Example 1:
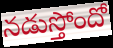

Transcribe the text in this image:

నడుస్తోందో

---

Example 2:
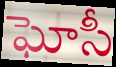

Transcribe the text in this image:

ఘోసీ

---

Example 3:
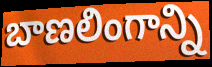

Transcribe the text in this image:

బాణలింగాన్ని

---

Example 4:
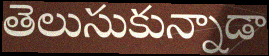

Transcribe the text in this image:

తెలుసుకున్నాడా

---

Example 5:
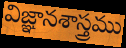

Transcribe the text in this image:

విజ్ఞానశాస్త్రము